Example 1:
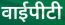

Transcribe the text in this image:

वाईपीटी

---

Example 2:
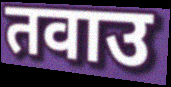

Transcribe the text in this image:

तवाउ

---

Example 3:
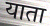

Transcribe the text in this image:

याता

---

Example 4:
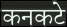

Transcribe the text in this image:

कनकटे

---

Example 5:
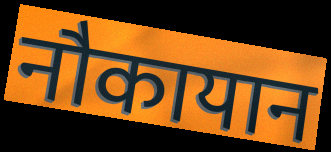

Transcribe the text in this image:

नौकायान